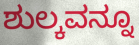
ಶುಲ್ಕವನ್ನೂ